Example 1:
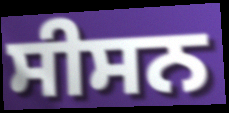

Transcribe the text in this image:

ਸੀਸਨ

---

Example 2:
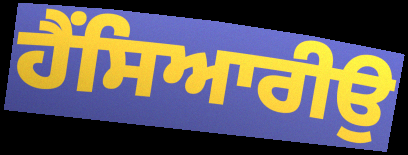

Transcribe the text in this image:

ਹੈਂਸਿਆਰੀਉ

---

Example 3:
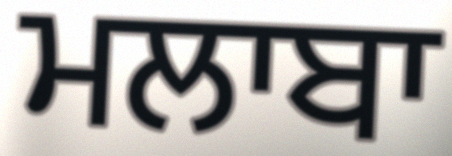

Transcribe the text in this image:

ਮਲਾਬਾ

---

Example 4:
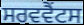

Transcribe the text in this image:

ਸਰਵਵੈਂਟਸ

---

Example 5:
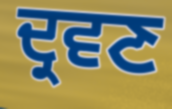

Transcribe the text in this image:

ਦ੍ਰਵਣ